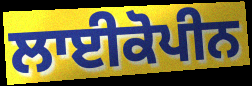
ਲਾਈਕੋਪੀਨ